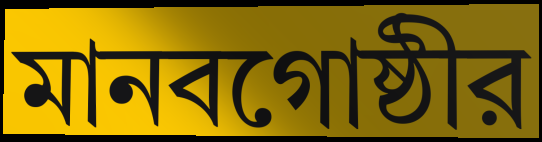
মানবগোষ্ঠীর